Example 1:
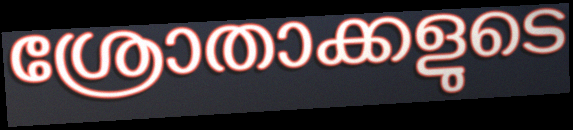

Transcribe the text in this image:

ശ്രോതാക്കളുടെ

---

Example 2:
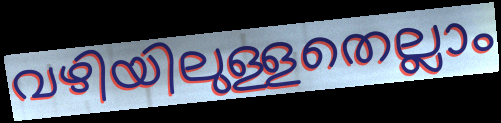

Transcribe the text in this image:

വഴിയിലുള്ളതെല്ലാം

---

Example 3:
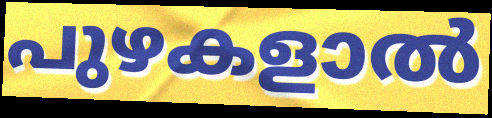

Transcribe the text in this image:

പുഴകളാൽ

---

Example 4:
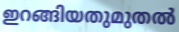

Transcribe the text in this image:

ഇറങ്ങിയതുമുതൽ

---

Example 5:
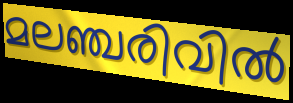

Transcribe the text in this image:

മലഞ്ചരിവിൽ